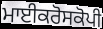
ਮਾਈਕਰੋਸਕੋਪੀ